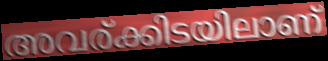
അവര്ക്കിടയിലാണ്